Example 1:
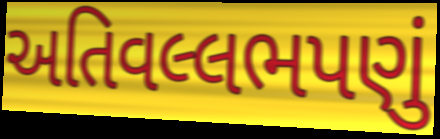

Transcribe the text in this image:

અતિવલ્લભપણું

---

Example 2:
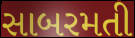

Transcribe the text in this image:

સાબરમતી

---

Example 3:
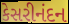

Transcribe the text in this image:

કેસરીનંદન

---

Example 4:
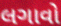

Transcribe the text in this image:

લગાવો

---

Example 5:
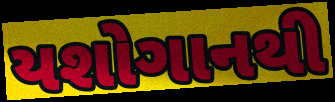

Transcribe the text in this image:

યશોગાનથી